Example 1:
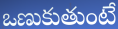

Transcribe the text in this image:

ఒణుకుతుంటే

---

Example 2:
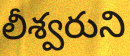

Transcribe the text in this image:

లీశ్వరుని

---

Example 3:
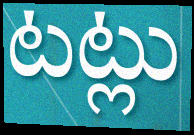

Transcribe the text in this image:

టట్లు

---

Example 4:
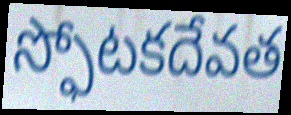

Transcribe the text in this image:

స్ఫోటకదేవత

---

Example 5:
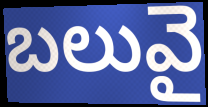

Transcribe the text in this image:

బలువై